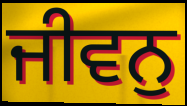
ਜੀਵਨੁ